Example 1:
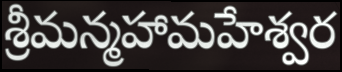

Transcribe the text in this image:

శ్రీమన్మహామహేశ్వర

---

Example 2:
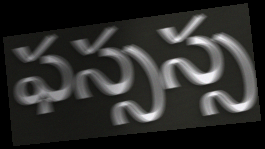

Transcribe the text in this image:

ఫస్సస్స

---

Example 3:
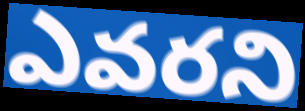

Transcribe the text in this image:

ఎవరని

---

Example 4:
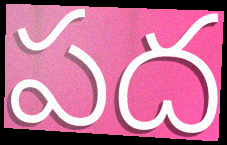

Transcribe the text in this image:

పద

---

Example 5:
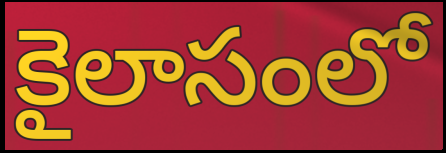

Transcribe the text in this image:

కైలాసంలో